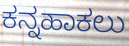
ಕನ್ನಹಾಕಲು